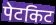
पेटकिट